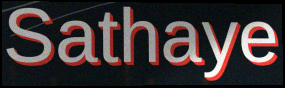
Sathaye